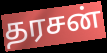
தரசன்